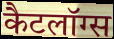
कैटलॉग्स